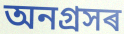
অনগ্ৰসৰ